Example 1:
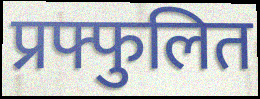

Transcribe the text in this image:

प्रफ्फुलित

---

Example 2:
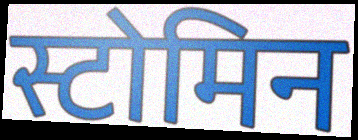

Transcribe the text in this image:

स्टोमिन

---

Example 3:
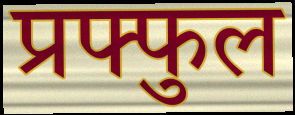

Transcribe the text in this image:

प्रफ्फुल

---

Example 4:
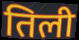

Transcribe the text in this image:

तिली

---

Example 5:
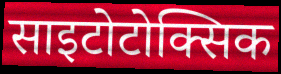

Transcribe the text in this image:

साइटोटोक्सिक